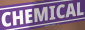
CHEMICAL